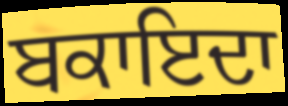
ਬਕਾਇਦਾ